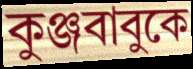
কুঞ্জবাবুকে